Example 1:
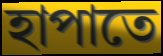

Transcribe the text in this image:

হাপাতে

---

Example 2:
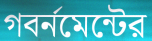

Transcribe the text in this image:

গবর্নমেন্টের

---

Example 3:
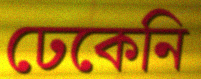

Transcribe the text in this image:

ঢেকেনি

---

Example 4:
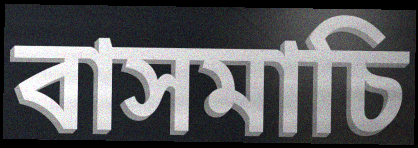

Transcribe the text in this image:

বাসমাচি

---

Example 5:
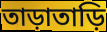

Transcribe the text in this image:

তাড়াতাড়ি